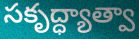
సకృద్ధ్యాత్వా